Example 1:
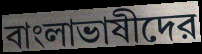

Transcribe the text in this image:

বাংলাভাষীদের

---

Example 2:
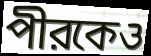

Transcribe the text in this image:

পীরকেও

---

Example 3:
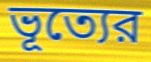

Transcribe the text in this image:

ভূত্যের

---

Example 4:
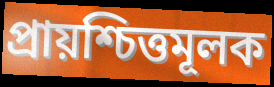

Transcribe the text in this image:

প্রায়শ্চিত্তমূলক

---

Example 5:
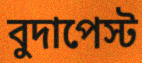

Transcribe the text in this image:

বুদাপেস্ট